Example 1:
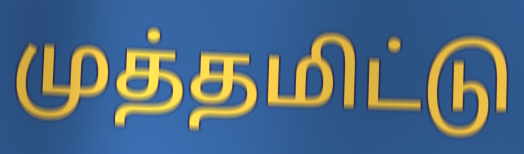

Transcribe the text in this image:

முத்தமிட்டு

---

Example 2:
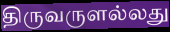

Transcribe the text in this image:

திருவருளல்லது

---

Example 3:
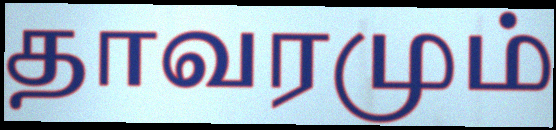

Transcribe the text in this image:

தாவரமும்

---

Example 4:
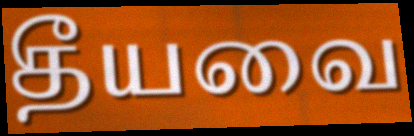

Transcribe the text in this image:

தீயவை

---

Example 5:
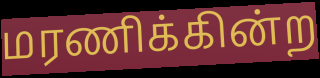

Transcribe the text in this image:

மரணிக்கின்ற